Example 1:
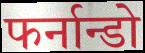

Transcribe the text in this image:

फर्नान्डो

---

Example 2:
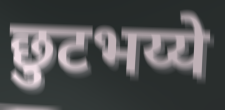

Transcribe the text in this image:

छुटभय्ये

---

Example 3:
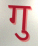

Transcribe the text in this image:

गु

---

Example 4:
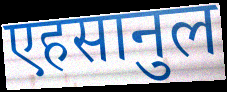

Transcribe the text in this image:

एहसानुल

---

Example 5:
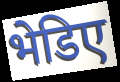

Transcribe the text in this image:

भेडिए